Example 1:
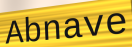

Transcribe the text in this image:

Abnave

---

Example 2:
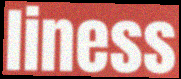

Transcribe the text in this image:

liness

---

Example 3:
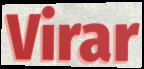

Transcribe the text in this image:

Virar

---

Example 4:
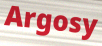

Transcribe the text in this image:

Argosy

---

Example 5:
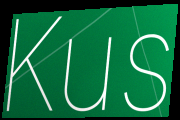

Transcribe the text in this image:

Kus